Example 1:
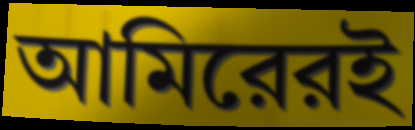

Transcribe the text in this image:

আমিরেরই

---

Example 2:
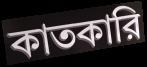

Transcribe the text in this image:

কাতকারি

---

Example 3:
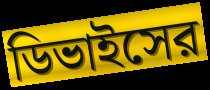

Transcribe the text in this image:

ডিভাইসের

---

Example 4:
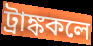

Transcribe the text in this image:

ট্রাঙ্ককলে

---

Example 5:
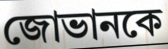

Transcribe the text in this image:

জোভানকে